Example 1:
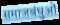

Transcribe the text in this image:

समाजबंधुओं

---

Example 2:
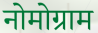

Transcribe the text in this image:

नोमोग्राम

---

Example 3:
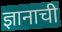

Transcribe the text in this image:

ज्ञानाची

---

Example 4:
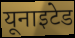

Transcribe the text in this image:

यूनाइटेड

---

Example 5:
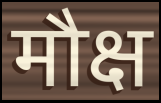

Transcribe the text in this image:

मौक्ष